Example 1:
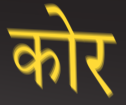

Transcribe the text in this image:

कोर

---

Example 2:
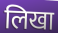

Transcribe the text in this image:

लिखा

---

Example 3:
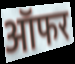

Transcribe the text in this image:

ऑफर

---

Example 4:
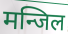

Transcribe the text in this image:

मन्जिल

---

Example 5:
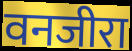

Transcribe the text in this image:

वनजीरा